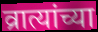
व्रात्यांच्या